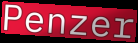
Penzer